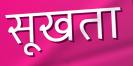
सूखता